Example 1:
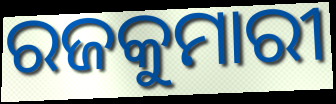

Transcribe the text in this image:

ରଜକୁମାରୀ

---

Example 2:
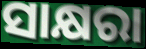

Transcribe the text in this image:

ସାକ୍ଷରା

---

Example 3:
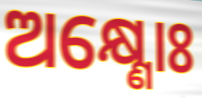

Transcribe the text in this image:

ଅକ୍ଷ୍ଣୋଃ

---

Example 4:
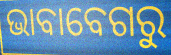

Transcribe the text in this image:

ଭାବାବେଗରୁ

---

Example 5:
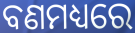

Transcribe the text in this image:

ବଣମଧ୍ଯରେ